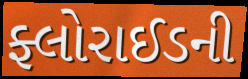
ફ્લોરાઈડની